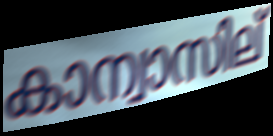
കാന്വാസില്